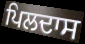
ਪਿਲਦਾਸ